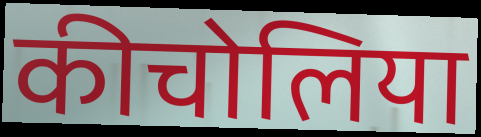
कीचोलिया